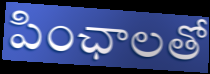
పింఛాలతో